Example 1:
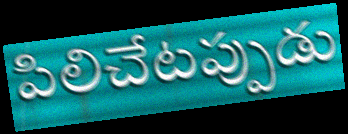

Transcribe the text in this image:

పిలిచేటప్పుడు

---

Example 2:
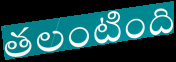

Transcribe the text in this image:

తలంటింది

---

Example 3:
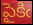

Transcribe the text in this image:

పైకిఁ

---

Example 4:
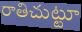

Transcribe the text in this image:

రాతిచుట్టూ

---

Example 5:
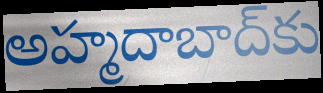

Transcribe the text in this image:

అహ్మదాబాద్‌కు